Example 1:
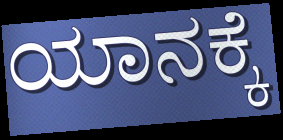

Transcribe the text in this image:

ಯಾನಕ್ಕೆ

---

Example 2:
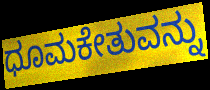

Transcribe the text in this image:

ಧೂಮಕೇತುವನ್ನು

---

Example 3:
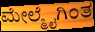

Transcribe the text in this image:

ಮೇಲ್ಮೈಗಿಂತ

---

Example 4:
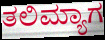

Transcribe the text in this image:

ತಲಿಮ್ಯಾಗ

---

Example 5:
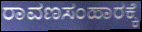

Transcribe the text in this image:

ರಾವಣಸಂಹಾರಕ್ಕೆ